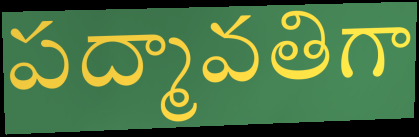
పద్మావతిగా